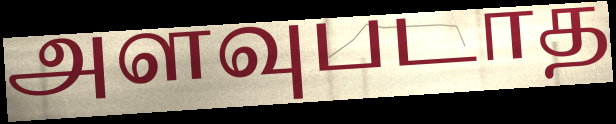
அளவுபடாத